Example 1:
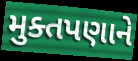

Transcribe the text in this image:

મુક્તપણાને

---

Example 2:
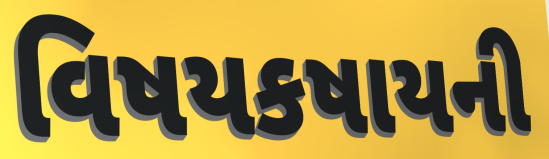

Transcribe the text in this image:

વિષયકષાયની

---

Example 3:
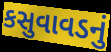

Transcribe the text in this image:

કસુવાવડનું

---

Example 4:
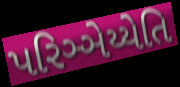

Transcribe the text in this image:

પરિઞ્ઞેય્યેતિ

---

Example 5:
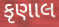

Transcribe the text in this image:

કૃણાલ